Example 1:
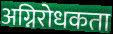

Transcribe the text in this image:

अग्निरोधकता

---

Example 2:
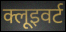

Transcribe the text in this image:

क्लूइवर्ट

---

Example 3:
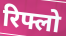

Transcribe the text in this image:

रिफ्लो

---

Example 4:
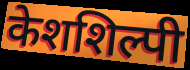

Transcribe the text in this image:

केशशिल्पी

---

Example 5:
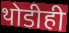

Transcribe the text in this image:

थोडीही